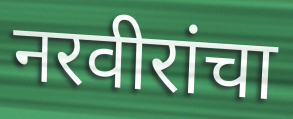
नरवीरांचा